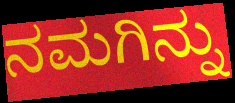
ನಮಗಿನ್ನು